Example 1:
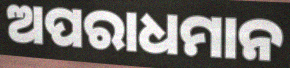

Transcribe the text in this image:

ଅପରାଧମାନ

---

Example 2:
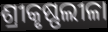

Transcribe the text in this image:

ଶ୍ରୀକୃଷ୍ଣଲୀଳା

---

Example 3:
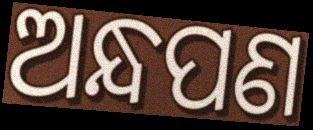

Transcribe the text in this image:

ଅନ୍ଧପଣ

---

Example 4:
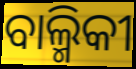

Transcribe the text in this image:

ବାଲ୍ମିକୀ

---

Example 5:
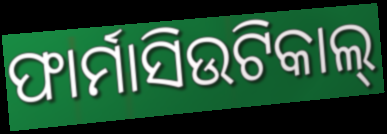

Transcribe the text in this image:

ଫାର୍ମାସିଉଟିକାଲ୍